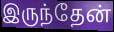
இருந்தேன்